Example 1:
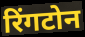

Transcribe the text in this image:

रिंगटोन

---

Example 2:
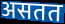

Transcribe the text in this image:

असतत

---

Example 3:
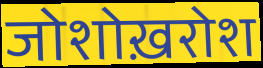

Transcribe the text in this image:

जोशोख़रोश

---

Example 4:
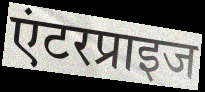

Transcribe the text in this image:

एंटरप्राइज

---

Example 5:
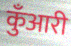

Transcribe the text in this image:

कुँआरी